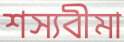
শস্যবীমা